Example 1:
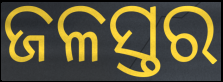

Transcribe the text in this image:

ଜଳସ୍ତର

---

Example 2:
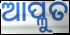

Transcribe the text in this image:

ଆପ୍ଳୁତ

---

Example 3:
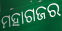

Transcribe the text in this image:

ମହାଗଜର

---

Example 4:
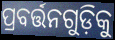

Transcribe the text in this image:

ପ୍ରବର୍ତ୍ତନଗୁଡ଼ିକୁ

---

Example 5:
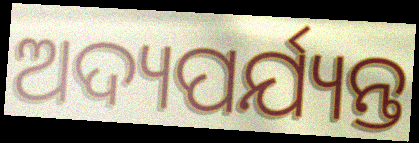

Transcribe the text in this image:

ଅଦ୍ୟପର୍ଯ୍ୟନ୍ତ